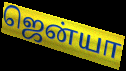
ஜென்யா